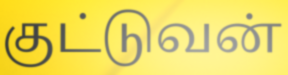
குட்டுவன்